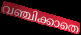
വഞ്ചിക്കാതെ